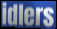
idlers